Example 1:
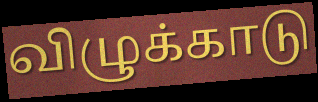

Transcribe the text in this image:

விழுக்காடு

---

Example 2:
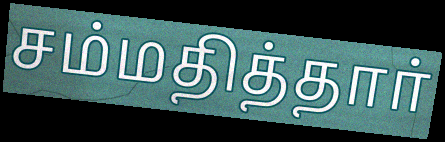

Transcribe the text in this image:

சம்மதித்தார்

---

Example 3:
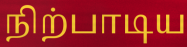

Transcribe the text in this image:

நிற்பாடிய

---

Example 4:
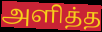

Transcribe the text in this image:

அளித்த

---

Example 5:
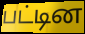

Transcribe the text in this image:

பட்டின